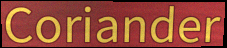
Coriander